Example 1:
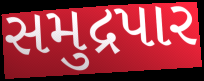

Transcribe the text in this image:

સમુદ્રપાર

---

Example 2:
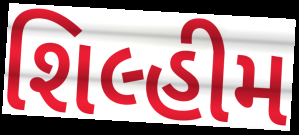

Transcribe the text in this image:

શિલ્હીમ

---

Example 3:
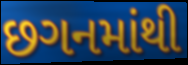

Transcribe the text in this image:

છગનમાંથી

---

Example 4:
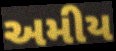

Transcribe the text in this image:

અમીય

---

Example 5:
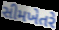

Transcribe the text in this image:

સીમખેતરે